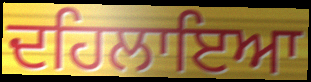
ਦਹਿਲਾਇਆ